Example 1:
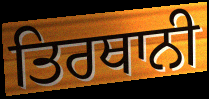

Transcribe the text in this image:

ਤਿਰਥਾਨੀ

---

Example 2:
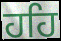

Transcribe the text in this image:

ਹਹਿ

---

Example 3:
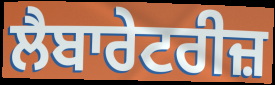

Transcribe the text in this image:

ਲੈਬਾਰੇਟਰੀਜ਼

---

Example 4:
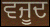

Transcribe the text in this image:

ਵਜੂਦ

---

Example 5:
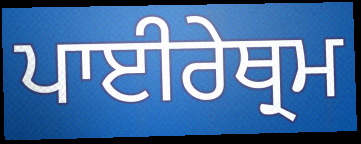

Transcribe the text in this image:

ਪਾਈਰੇਥ੍ਰਮ